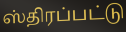
ஸ்திரப்பட்டு